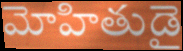
మోహితుడై